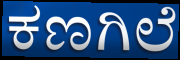
ಕಣಗಿಲೆ